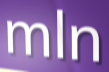
mln